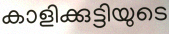
കാളിക്കുട്ടിയുടെ